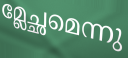
മ്ലേച്ഛമെന്നു